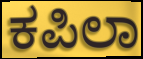
ಕಪಿಲಾ